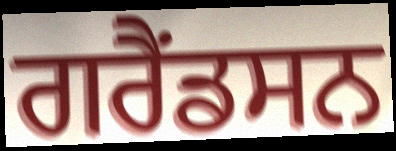
ਗਰੈਂਡਸਨ